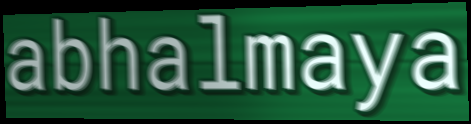
abhalmaya